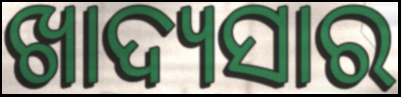
ଖାଦ୍ୟସାର